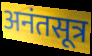
अनंतसूत्र